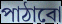
পাঠাবো